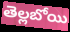
తెల్లబోయి